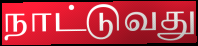
நாட்டுவது